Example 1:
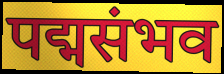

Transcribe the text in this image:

पद्मसंभव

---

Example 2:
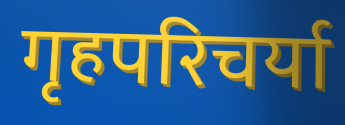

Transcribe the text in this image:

गृहपरिचर्या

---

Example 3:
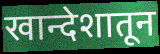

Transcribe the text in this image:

खान्देशातून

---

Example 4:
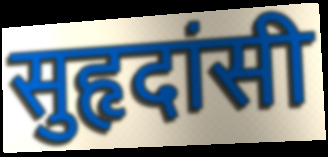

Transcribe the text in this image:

सुहृदांसी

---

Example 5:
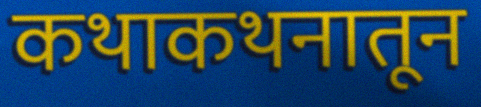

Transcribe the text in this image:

कथाकथनातून